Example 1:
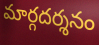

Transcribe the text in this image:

మార్గదర్శనం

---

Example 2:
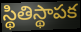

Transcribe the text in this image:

స్థితిస్థాపక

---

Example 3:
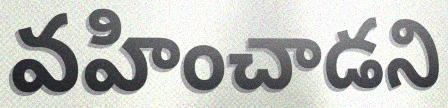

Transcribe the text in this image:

వహించాడని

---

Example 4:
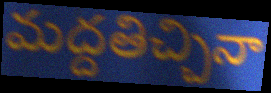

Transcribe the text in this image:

మద్దతిచ్చినా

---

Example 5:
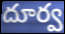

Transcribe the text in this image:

దూర్వ